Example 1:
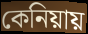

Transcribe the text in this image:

কেনিয়ায়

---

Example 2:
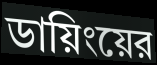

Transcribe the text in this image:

ডায়িংয়ের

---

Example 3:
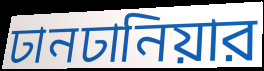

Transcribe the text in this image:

ঢানঢানিয়ার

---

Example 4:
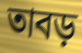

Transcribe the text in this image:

তাবড়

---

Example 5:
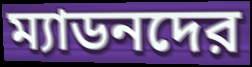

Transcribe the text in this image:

ম্যাডনদের